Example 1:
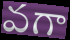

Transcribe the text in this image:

వగా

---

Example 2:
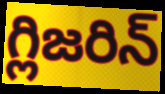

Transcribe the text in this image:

గ్లిజరిన్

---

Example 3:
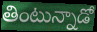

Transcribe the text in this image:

తింటున్నాడో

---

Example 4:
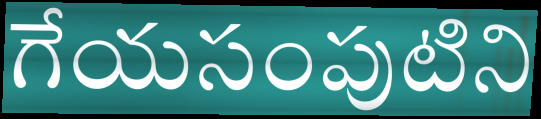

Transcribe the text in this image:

గేయసంపుటిని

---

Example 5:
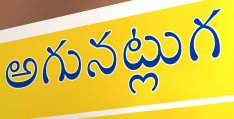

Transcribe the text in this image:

అగునట్లుగ